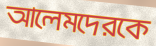
আলেমদেরকে